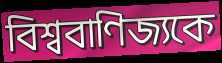
বিশ্ববাণিজ্যকে